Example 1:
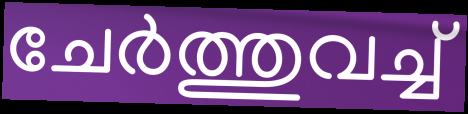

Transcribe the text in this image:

ചേർത്തുവച്ച്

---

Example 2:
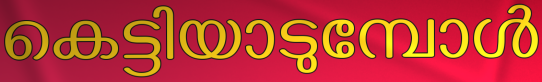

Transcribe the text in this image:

കെട്ടിയാടുമ്പോൾ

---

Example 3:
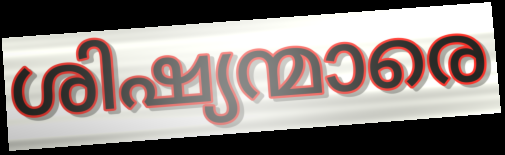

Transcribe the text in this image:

ശിഷ്യന്മാരെ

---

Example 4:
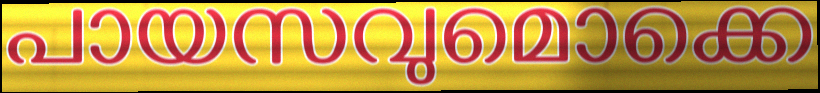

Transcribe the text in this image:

പായസവുമൊക്കെ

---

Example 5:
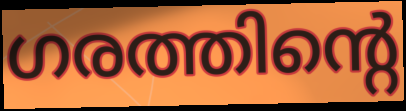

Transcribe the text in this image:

ഗരത്തിന്റെ